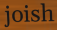
joish